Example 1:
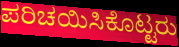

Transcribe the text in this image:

ಪರಿಚಯಿಸಿಕೊಟ್ಟರು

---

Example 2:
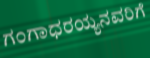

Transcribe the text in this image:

ಗಂಗಾಧರಯ್ಯನವರಿಗೆ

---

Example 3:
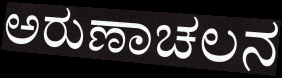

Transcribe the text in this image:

ಅರುಣಾಚಲನ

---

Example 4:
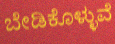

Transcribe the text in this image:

ಬೇಡಿಕೊಳ್ಳುವೆ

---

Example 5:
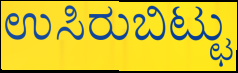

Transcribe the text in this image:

ಉಸಿರುಬಿಟ್ಟು